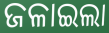
ଜଳାଇଲା